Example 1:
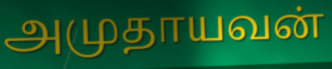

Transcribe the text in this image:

அமுதாயவன்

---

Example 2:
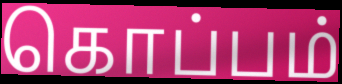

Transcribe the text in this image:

கொப்பம்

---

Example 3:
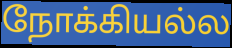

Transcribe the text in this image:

நோக்கியல்ல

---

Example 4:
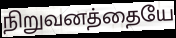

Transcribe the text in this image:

நிறுவனத்தையே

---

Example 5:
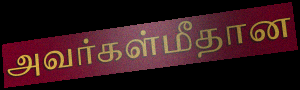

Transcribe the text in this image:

அவர்கள்மீதான